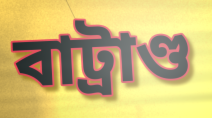
বাট্রাণ্ড